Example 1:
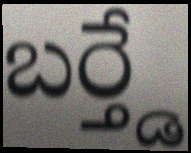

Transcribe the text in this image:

బర్త్డే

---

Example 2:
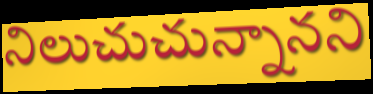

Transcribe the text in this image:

నిలుచుచున్నానని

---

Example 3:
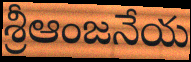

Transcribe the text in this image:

శ్రీఆంజనేయ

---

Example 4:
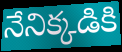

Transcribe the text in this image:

నేనిక్కడికి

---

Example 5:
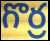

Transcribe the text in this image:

గొర్ర